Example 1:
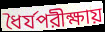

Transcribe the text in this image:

ধৈর্যপরীক্ষায়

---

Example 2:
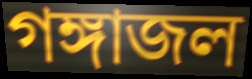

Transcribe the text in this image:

গঙ্গাজল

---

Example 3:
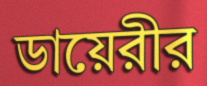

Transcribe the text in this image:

ডায়েরীর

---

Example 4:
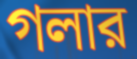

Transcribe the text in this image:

গলার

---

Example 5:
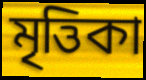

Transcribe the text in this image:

মৃত্তিকা